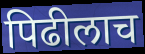
पिढीलाच